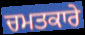
ਚਮਤਕਾਰੇ